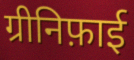
ग्रीनिफ़ाई